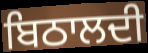
ਬਿਠਾਲਦੀ